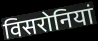
विसरोनियां